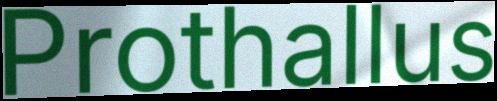
Prothallus